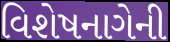
વિશેષનાગેની